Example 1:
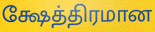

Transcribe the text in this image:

க்ஷேத்திரமான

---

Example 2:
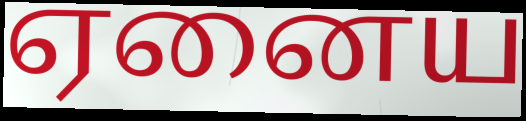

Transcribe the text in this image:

ஏனைய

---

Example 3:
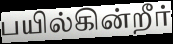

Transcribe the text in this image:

பயில்கின்றீர்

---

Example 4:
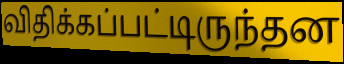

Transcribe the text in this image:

விதிக்கப்பட்டிருந்தன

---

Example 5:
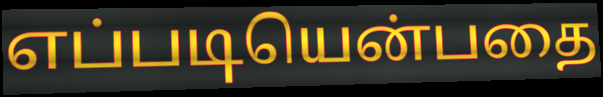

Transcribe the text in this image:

எப்படியென்பதை